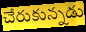
చేరుకున్నడు